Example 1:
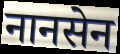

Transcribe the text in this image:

नानसेन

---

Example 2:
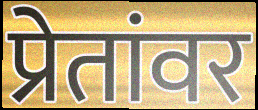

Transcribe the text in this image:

प्रेतांवर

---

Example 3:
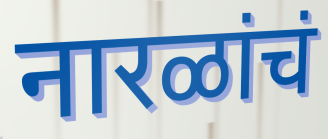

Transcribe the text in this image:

नारळांचं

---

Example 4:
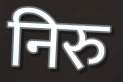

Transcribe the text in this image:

निरु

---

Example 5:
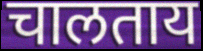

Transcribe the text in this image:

चालताय